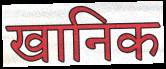
खानिक